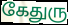
கேதுரு